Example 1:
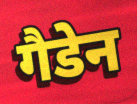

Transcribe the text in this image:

गैडेन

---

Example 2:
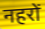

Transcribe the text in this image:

नहरों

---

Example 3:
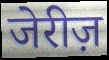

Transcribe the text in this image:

जेरीज़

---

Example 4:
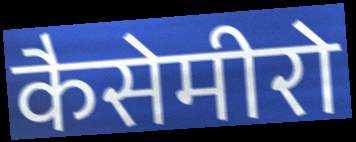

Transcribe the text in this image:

कैसेमीरो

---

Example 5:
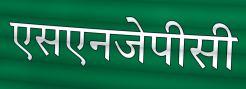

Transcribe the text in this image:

एसएनजेपीसी